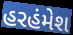
હરહંમેશ